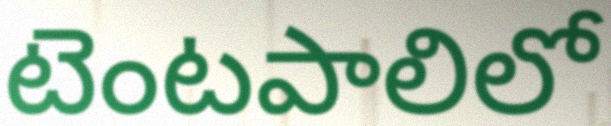
టెంటపాలిలో